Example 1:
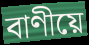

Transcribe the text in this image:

বাণীয়ে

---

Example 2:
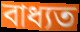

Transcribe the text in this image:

বাধ্যত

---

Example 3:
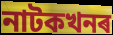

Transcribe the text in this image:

নাটকখনৰ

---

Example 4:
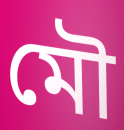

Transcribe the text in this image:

মৌ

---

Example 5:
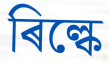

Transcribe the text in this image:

ৰিল্কে